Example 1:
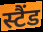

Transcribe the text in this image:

स्टैंड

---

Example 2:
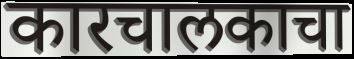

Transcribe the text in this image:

कारचालकाचा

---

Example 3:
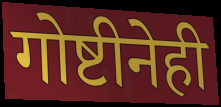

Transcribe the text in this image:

गोष्टीनेही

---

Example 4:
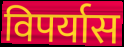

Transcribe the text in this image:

विपर्यास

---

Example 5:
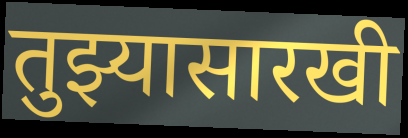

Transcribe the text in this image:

तुझ्यासारखी